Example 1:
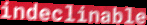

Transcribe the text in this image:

indeclinable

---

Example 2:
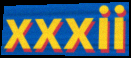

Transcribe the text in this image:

xxxii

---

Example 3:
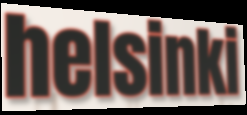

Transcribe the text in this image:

helsinki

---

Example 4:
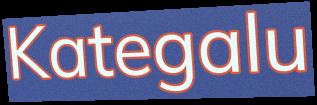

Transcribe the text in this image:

Kategalu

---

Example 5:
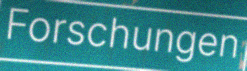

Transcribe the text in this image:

Forschungen